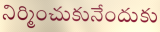
నిర్మించుకునేందుకు